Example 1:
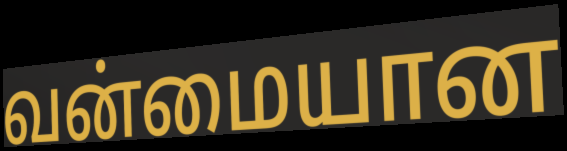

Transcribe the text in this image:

வன்மையான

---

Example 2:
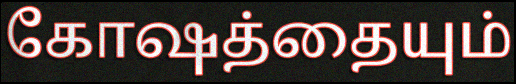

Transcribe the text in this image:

கோஷத்தையும்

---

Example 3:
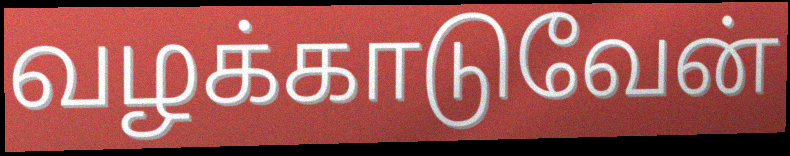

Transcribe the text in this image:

வழக்காடுவேன்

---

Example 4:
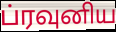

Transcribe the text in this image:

ப்ரவுனிய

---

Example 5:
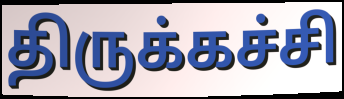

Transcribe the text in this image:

திருக்கச்சி